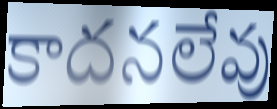
కాదనలేవు